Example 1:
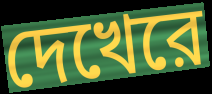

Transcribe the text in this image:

দেখেরে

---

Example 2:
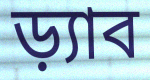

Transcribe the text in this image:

ড়্যাব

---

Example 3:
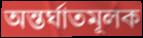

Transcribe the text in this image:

অন্তর্ঘাতমূলক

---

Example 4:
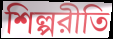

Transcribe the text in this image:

শিল্পরীতি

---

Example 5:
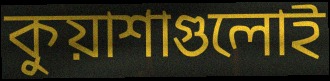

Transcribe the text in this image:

কুয়াশাগুলোই